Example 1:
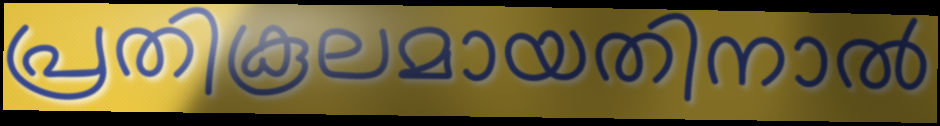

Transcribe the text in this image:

പ്രതികൂലമായതിനാൽ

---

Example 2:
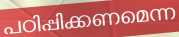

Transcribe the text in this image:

പഠിപ്പിക്കണമെന്ന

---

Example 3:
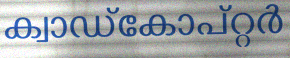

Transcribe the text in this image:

ക്വാഡ്കോപ്റ്റർ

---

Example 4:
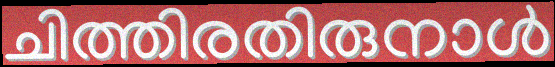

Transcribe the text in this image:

ചിത്തിരതിരുനാൾ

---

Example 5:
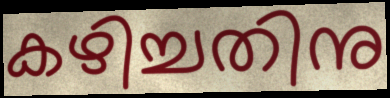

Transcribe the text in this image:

കഴിച്ചതിനു